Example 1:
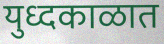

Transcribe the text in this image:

युध्दकाळात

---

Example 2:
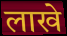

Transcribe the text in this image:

लाखे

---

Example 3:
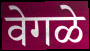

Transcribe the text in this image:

वेगळे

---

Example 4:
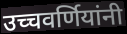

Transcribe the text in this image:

उच्चवर्णियांनी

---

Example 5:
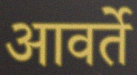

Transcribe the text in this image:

आवर्ते